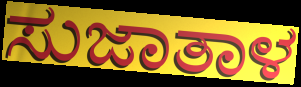
ಸುಜಾತಾಳ